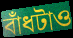
বাঁধটাও